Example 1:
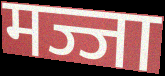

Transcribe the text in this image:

मज्जा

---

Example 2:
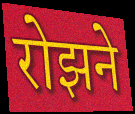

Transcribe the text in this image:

रोझने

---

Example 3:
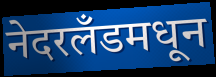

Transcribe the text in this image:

नेदरलँडमधून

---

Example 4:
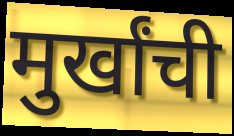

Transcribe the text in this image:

मुर्खांची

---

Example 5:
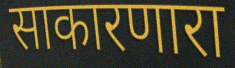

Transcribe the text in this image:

साकारणारा